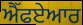
ਐੱਫਏਆਰ